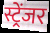
स्ट्रेंजर